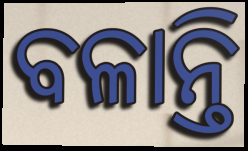
ବଳାନ୍ତି